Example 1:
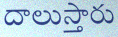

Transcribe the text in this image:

దాలుస్తారు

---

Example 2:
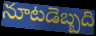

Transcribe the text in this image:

నూటడెబ్బది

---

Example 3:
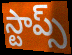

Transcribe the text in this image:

స్టాప్స్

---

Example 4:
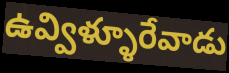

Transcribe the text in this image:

ఉవ్విళ్ళూరేవాడు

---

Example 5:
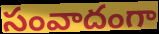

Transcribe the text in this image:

సంవాదంగా